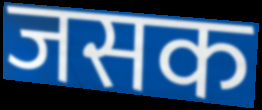
जसक